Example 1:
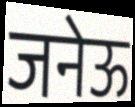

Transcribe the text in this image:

जनेऊ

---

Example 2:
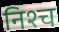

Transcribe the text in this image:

निश्च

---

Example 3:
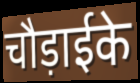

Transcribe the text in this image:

चौड़ाईके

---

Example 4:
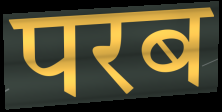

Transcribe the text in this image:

परब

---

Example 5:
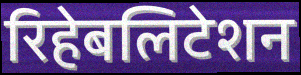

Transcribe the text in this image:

रिहेबलिटेशन